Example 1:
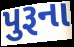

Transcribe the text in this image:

પુરૂના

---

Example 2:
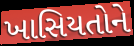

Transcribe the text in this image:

ખાસિયતોને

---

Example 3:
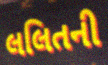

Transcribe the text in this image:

લલિતની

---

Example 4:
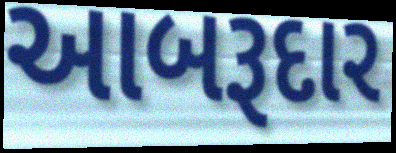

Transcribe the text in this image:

આબરૂદાર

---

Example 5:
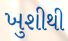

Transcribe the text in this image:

ખુશીથી